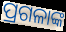
ପ୍ରଗଳାଙ୍କ